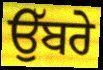
ਉੱਬਰੇ